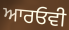
ਆਰਓਵੀ